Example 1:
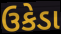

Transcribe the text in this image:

ઉકેડા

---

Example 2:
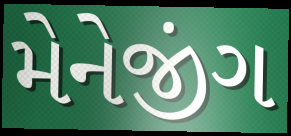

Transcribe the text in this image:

મેનેજીંગ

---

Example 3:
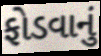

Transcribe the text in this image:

ફોડવાનું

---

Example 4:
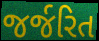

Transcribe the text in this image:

જર્જરિત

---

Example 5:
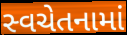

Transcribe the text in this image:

સ્વચેતનામાં